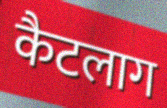
कैटलाग